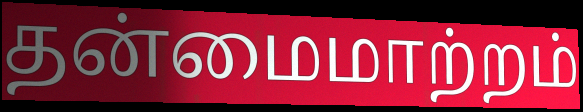
தன்மைமாற்றம்